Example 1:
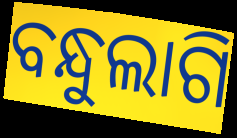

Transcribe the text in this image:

ବନ୍ଧୁଲାଗି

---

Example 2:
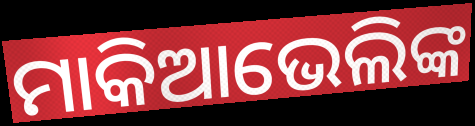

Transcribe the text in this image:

ମାକିଆଭେଲିଙ୍କ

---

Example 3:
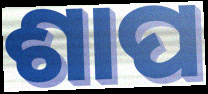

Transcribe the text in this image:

ଶାପ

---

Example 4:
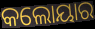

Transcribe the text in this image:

କଲୋୟାର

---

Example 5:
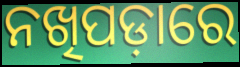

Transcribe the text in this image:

ନଖିପଡ଼ାରେ